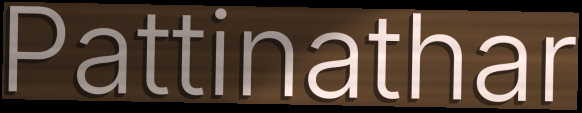
Pattinathar